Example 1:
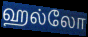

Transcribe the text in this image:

ஹல்லோ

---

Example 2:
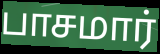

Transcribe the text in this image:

பாசமார்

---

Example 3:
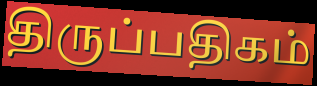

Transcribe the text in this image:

திருப்பதிகம்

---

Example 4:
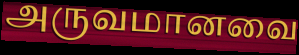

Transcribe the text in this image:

அருவமானவை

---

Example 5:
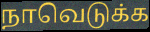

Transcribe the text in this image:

நாவெடுக்க